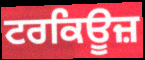
ਟਰਕਿਊਜ਼